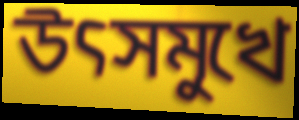
উৎসমুখে